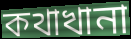
কথাখানা